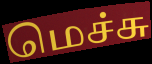
மெச்சு